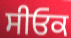
ਸੀਓਕ